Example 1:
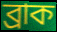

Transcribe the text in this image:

ব্রাক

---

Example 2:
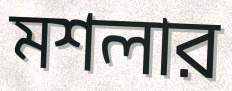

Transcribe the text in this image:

মশলার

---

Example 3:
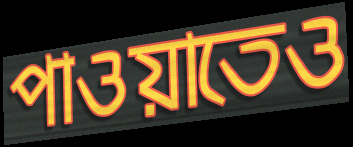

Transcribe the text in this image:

পাওয়াতেও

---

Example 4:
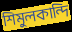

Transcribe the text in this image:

শিমুলকান্দি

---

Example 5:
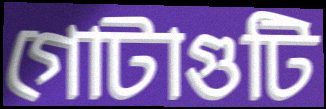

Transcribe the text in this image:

গোটাগুটি